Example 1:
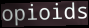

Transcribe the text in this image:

opioids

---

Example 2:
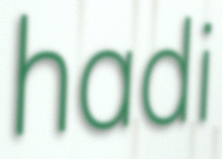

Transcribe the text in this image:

hadi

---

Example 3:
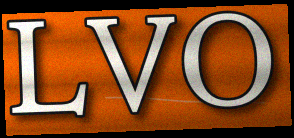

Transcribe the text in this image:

LVO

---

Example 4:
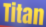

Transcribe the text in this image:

Titan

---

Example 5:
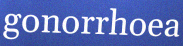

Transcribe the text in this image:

gonorrhoea